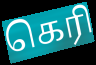
கெரி